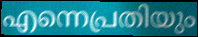
എന്നെപ്രതിയും